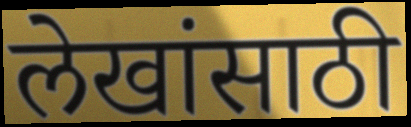
लेखांसाठी